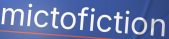
mictofiction